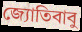
জ্যোতিবাবু